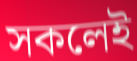
সকলেই